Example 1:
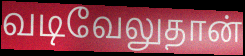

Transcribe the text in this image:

வடிவேலுதான்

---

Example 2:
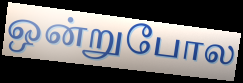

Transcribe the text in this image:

ஒன்றுபோல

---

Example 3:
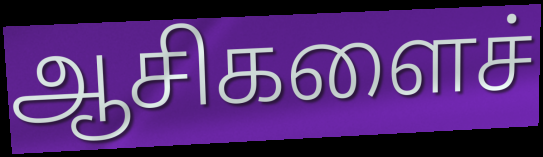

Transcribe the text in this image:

ஆசிகளைச்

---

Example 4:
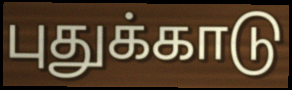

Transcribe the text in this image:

புதுக்காடு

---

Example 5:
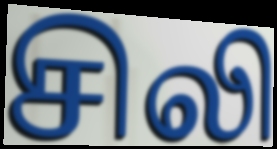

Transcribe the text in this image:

சிலி